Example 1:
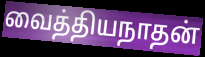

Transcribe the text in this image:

வைத்தியநாதன்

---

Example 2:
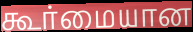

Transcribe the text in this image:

கூர்மையான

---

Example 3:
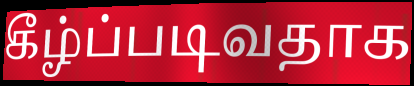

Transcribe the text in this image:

கீழ்ப்படிவதாக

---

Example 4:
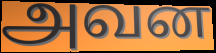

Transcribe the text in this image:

அவன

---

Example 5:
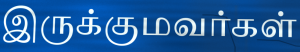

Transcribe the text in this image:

இருக்குமவர்கள்